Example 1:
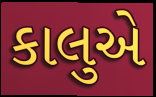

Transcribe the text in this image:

કાલુએ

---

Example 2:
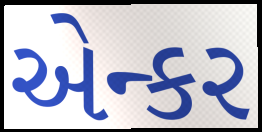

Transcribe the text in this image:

એન્કર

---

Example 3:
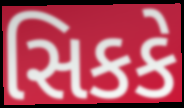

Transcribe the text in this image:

સિકકે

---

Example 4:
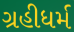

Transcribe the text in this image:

ગ્રહીધર્મ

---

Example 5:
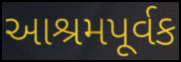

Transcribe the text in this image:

આશ્રમપૂર્વક